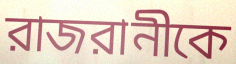
রাজরানীকে